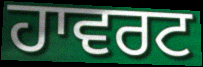
ਹਾਵਰਟ